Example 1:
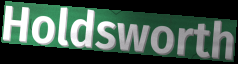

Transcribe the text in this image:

Holdsworth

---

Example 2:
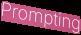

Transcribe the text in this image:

Prompting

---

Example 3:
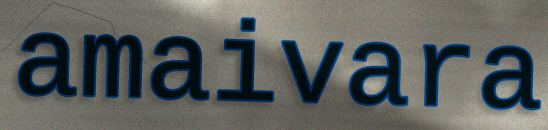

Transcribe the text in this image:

amaivara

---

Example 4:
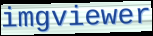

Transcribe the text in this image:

imgviewer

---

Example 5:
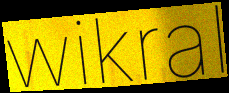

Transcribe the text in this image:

wikral